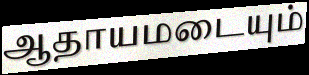
ஆதாயமடையும்